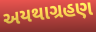
અયથાગ્રહણ